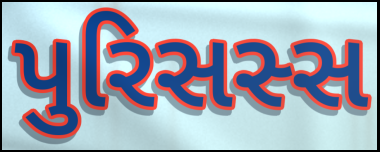
પુરિસસ્સ